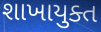
શાખાયુક્ત